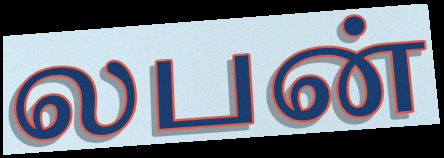
லபன்